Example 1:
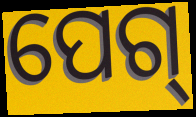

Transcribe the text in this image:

ପେଗ୍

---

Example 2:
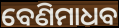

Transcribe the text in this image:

ବେଣିମାଧବ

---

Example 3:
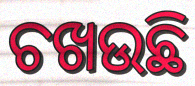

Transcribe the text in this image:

ଚଖଉଛି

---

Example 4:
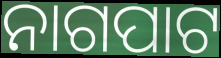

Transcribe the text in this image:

ନାଗପାଟ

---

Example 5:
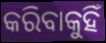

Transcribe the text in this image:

କରିବାକୁହିଁ